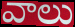
వాలు